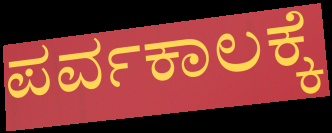
ಪರ್ವಕಾಲಕ್ಕೆ